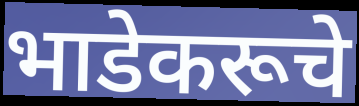
भाडेकरूचे